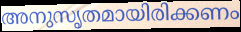
അനുസൃതമായിരിക്കണം